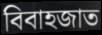
বিবাহজাত